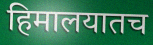
हिमालयातच